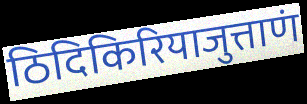
ठिदिकिरियाजुत्ताणं